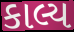
કાલ્ય